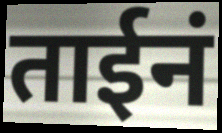
ताईनं